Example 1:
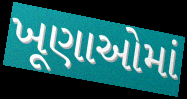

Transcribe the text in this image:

ખૂણાઓમાં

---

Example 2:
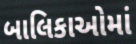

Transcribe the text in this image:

બાલિકાઓમાં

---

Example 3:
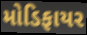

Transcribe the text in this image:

મોડિફાયર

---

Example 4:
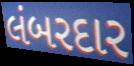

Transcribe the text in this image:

લંબરદાર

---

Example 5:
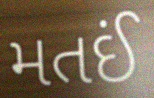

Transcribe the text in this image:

મતઈં